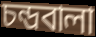
চন্দ্রবালা